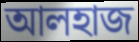
আলহাজ